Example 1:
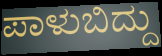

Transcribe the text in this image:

ಪಾಳುಬಿದ್ದು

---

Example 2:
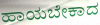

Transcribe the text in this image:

ಹಾಯಬೇಕಾದ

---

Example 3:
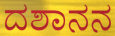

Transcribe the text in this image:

ದಶಾನನ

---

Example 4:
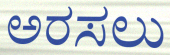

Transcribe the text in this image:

ಅರಸಲು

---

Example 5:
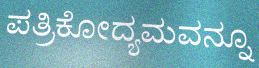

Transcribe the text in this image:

ಪತ್ರಿಕೋದ್ಯಮವನ್ನೂ